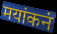
मयांकनं